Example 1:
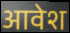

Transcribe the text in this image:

आवेश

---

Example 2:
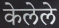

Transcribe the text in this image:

केलेले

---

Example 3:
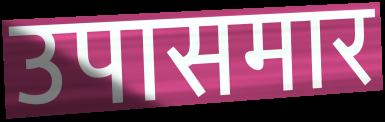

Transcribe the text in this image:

उपासमार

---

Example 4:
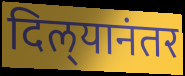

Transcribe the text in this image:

दिल्यानंतर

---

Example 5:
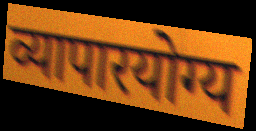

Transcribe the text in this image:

व्यापारयोग्य